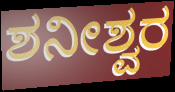
ಶನೀಶ್ವರ